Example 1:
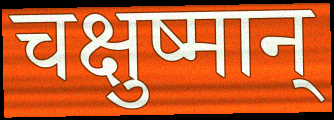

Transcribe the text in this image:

चक्षुष्मान्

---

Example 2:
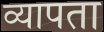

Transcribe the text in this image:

व्यापता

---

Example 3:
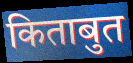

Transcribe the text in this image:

किताबुत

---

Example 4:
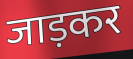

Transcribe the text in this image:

जाड़कर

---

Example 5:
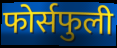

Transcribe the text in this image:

फोर्सफुली